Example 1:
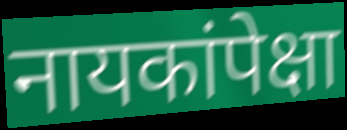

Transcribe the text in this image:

नायकांपेक्षा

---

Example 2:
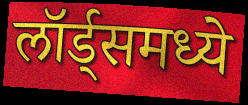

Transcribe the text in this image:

लॉर्ड्समध्ये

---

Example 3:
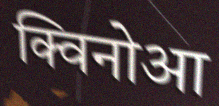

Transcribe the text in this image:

क्विनोआ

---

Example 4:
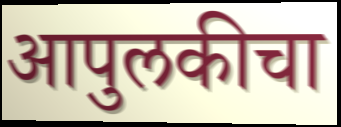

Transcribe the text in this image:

आपुलकीचा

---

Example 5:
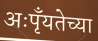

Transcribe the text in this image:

अःपृँयतेच्या